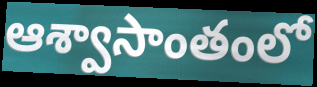
ఆశ్వాసాంతంలో